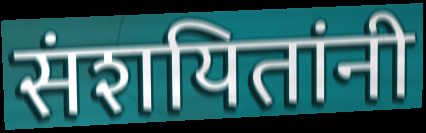
संशयितांनी